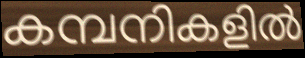
കമ്പനികളിൽ